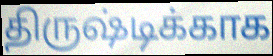
திருஷ்டிக்காக